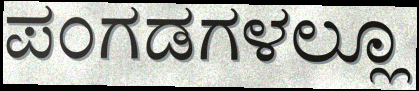
ಪಂಗಡಗಳಲ್ಲೂ